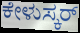
ಕೇಳುಸ್ಕರ್